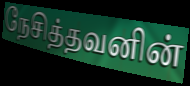
நேசித்தவனின்